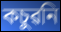
কচুৱনি